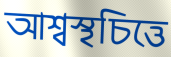
আশ্বস্থচিত্তে